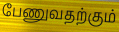
பேணுவதற்கும்